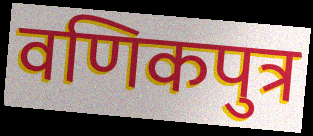
वणिकपुत्र